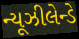
ન્યૂઝીલેન્ડે